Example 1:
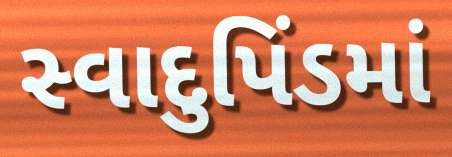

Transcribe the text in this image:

સ્વાદુપિંડમાં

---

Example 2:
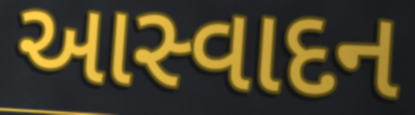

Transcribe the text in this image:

આસ્વાદન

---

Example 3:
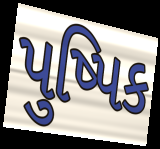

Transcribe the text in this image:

પુષ્પિક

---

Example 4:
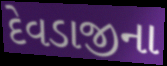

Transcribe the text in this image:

દેવડાજીના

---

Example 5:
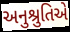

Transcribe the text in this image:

અનુશ્રુતિએ